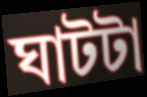
ঘাটটা